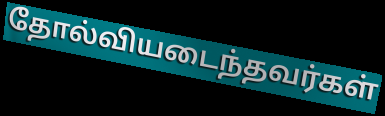
தோல்வியடைந்தவர்கள்